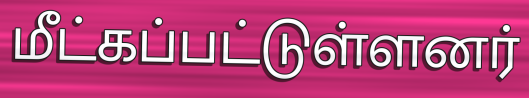
மீட்கப்பட்டுள்ளனர்